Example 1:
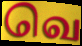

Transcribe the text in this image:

வெ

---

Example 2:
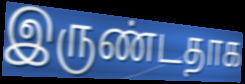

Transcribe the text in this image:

இருண்டதாக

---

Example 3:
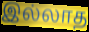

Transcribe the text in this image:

இல்லாத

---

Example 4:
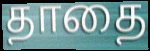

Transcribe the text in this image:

தாதை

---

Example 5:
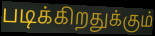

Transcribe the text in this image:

படிக்கிறதுக்கும்